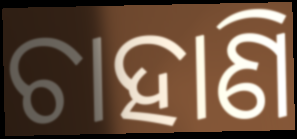
ଚାହାଣି